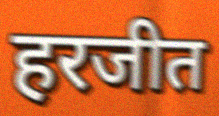
हरजीत